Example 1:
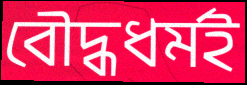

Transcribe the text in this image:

বৌদ্ধধৰ্মই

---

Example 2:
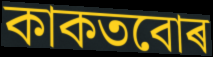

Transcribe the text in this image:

কাকতবোৰ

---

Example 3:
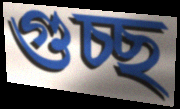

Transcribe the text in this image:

গুচ্ছ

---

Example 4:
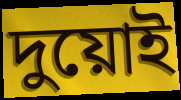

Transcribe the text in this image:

দুয়োই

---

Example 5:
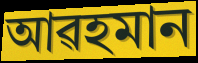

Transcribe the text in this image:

আৱহমান